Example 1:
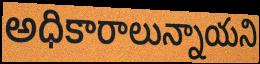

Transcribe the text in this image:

అధికారాలున్నాయని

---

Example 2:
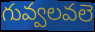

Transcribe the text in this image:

గువ్వలవలె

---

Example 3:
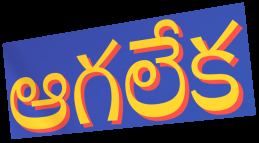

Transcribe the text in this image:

ఆగలేక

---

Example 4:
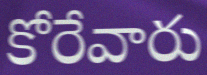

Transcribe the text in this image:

కోరేవారు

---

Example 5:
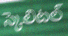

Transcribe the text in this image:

స్కెలిటల్